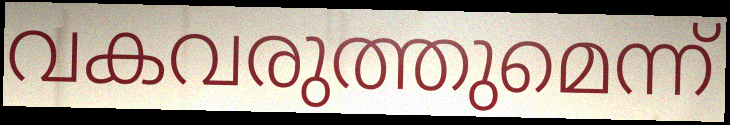
വകവരുത്തുമെന്ന്